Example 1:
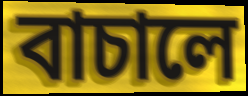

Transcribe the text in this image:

বাচালে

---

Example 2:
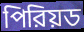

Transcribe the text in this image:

পিরিয়ড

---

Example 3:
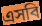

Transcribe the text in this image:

এসবি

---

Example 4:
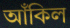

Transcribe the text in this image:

আঁকিল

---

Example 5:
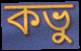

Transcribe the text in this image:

কভু